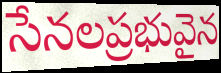
సేనలప్రభువైన